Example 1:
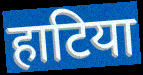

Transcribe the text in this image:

हाटिया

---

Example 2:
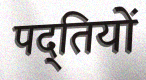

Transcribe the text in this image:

पद्तियों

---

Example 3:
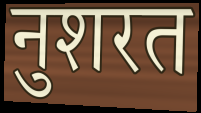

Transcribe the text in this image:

नुशरत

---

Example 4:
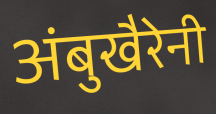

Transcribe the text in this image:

अंबुखैरेनी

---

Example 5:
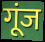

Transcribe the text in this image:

गूंज